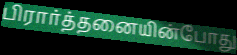
பிரார்த்தனையின்போது